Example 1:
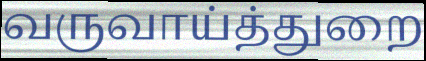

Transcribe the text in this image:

வருவாய்த்துறை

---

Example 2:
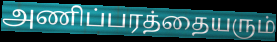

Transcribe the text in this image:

அணிப்பரத்தையரும்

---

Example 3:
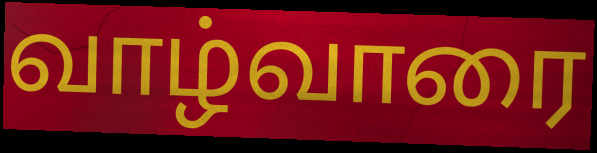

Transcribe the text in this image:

வாழ்வாரை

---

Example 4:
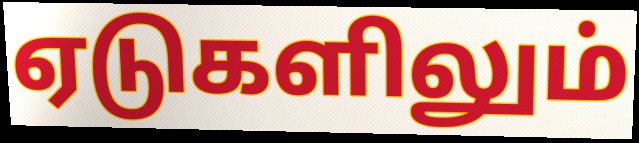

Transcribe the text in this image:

ஏடுகளிலும்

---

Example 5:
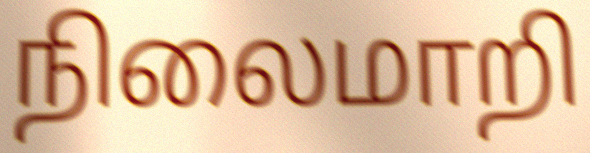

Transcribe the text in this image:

நிலைமாறி